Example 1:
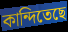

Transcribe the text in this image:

কান্দিতেছে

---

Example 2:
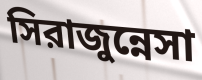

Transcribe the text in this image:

সিরাজুন্নেসা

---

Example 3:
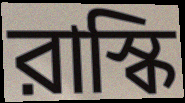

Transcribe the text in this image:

রাস্কি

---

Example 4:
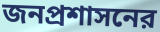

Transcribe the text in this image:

জনপ্রশাসনের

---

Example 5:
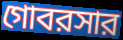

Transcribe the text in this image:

গোবরসার